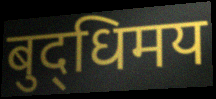
बुद्धिमय